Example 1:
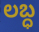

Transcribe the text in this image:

లబ్ధ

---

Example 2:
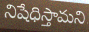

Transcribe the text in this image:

నిషేధిస్తామని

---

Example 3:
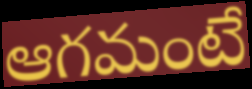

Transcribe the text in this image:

ఆగమంటే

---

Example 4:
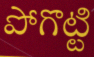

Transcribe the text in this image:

పోగొట్టి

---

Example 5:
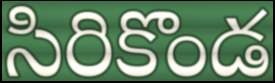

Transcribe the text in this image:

సిరికొండ